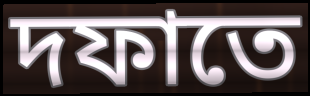
দফাতে